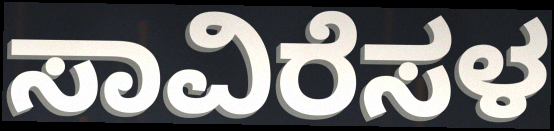
ಸಾವಿರೆಸಳ